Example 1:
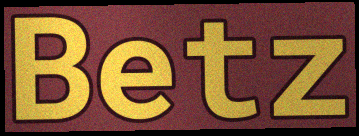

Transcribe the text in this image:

Betz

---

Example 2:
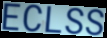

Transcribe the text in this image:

ECLSS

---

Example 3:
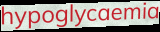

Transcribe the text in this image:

hypoglycaemia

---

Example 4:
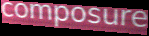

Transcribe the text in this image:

composure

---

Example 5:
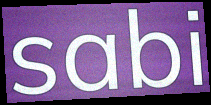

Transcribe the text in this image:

sabi